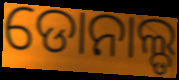
ଡୋନାଲ୍ଡ